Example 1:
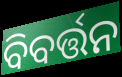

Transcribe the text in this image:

ବିବର୍ତ୍ତନ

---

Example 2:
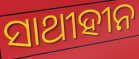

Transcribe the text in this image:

ସାଥୀହୀନ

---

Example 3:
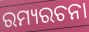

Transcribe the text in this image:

ରମ୍ୟରଚନା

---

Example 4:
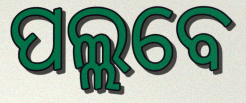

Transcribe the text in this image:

ପଲ୍ଲବେ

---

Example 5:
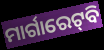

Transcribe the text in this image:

ମାର୍ଗାରେଟ୍‌ବି